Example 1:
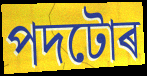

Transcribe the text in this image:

পদটোৰ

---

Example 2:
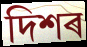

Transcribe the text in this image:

দিশৰ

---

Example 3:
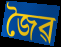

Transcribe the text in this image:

জৈৱ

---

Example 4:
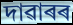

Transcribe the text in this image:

দাৱাৰৰ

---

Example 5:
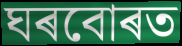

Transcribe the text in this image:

ঘৰবোৰত